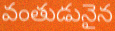
వంతుడునైన